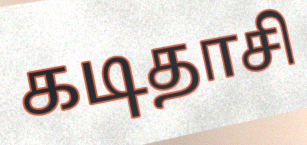
கடிதாசி